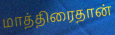
மாத்திரைதான்